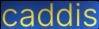
caddis